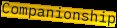
Companionship